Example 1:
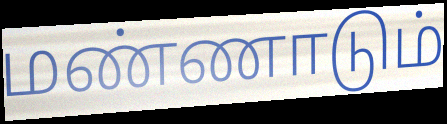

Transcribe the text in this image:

மண்ணாடும்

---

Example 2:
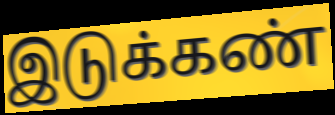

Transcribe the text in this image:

இடுக்கண்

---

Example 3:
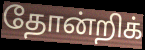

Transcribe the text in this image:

தோன்றிக்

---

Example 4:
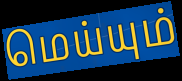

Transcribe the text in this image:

மெய்யும்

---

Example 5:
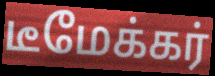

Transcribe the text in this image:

டீமேக்கர்